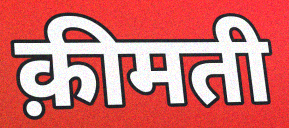
क़ीमती